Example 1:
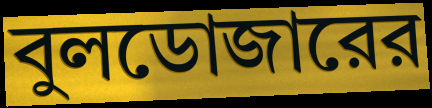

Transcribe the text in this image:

বুলডোজারের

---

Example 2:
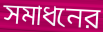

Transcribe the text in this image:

সমাধনের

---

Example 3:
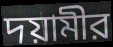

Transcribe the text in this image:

দয়ামীর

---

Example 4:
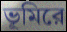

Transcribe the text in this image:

ভূমিরে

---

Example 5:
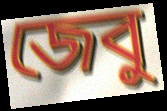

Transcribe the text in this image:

জেবু